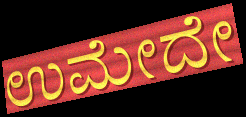
ಉಮೇದೇ